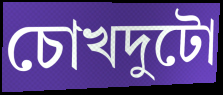
চোখদুটো